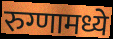
रुग्णामध्ये